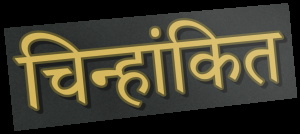
चिन्हांकित